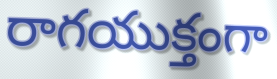
రాగయుక్తంగా